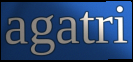
agatri